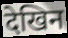
देखिन